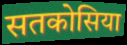
सतकोसिया